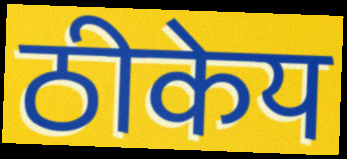
ठीकेय